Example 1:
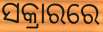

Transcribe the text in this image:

ସକ୍ରାରରେ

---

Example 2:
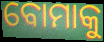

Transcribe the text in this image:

ବୋମାକୁ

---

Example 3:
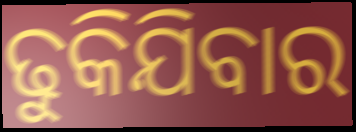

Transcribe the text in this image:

ଢୁକିଯିବାର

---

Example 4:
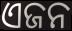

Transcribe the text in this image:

ଏଜନ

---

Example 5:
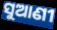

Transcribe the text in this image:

ସୁଆଣୀ